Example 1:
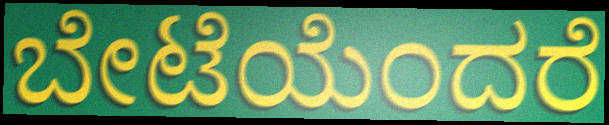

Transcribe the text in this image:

ಬೇಟೆಯೆಂದರೆ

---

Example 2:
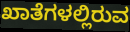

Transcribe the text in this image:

ಖಾತೆಗಳಲ್ಲಿರುವ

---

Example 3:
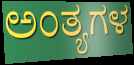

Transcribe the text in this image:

ಅಂತ್ಯಗಳ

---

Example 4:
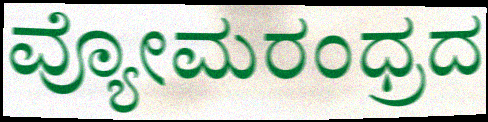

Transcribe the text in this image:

ವ್ಯೋಮರಂಧ್ರದ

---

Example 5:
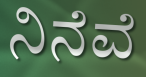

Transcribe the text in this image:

ನಿನೆವೆ